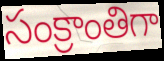
సంక్రాంతిగా